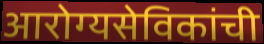
आरोग्यसेविकांची